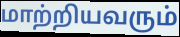
மாற்றியவரும்